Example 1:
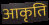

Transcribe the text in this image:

आकृति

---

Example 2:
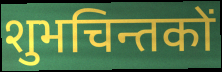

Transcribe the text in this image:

शुभचिन्तकों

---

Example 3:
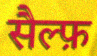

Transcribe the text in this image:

सैल्फ़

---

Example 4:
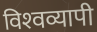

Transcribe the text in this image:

विश्‍वव्यापी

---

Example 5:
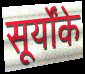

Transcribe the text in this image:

सूर्योंके